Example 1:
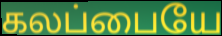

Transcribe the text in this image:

கலப்பையே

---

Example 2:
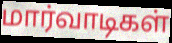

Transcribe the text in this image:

மார்வாடிகள்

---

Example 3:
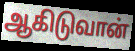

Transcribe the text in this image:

ஆகிடுவான்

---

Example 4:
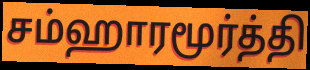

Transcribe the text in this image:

சம்ஹாரமூர்த்தி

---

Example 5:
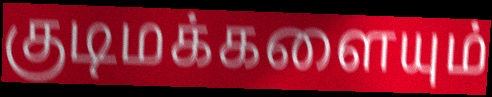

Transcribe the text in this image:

குடிமக்களையும்